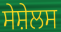
ਸੇਸ਼ੇਲਸ